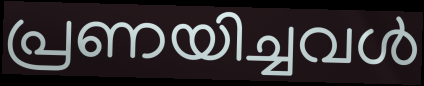
പ്രണയിച്ചവൾ